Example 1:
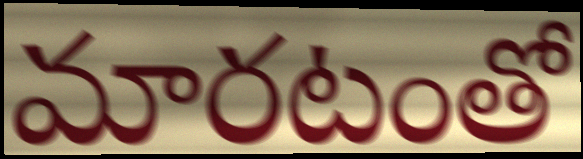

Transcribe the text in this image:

మారటంతో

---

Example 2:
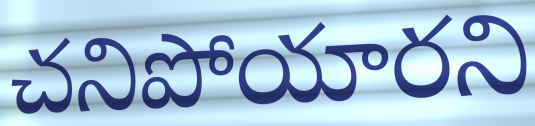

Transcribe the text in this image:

చనిపోయారని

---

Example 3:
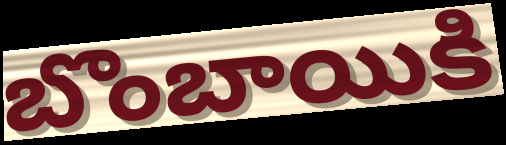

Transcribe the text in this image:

బొంబాయికి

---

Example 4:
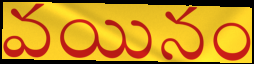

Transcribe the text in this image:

వయినం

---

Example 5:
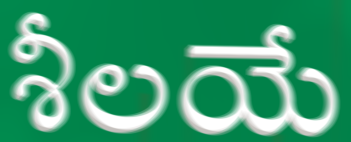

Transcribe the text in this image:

శీలయే